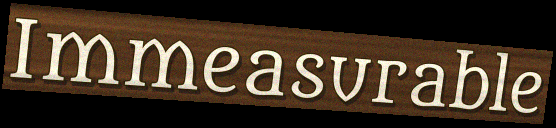
Immeasurable